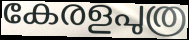
കേരളപുത്ര